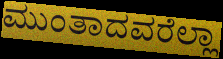
ಮುಂತಾದವರೆಲ್ಲಾ